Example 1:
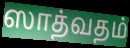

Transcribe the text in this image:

ஸாத்வதம்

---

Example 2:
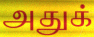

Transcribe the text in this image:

அதுக்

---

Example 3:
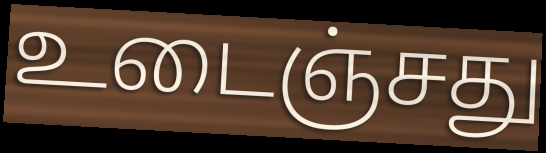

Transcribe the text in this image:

உடைஞ்சது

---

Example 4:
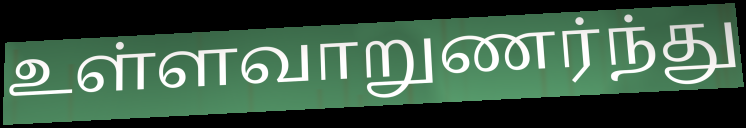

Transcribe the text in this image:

உள்ளவாறுணர்ந்து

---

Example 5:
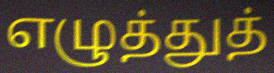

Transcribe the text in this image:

எழுத்துத்